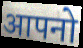
आपनो